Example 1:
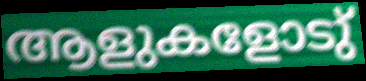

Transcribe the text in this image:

ആളുകളോടു്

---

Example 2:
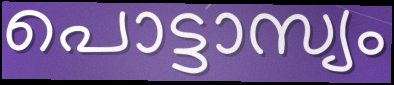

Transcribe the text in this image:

പൊട്ടാസ്യം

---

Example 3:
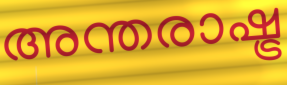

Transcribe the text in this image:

അന്തരാഷ്ട്ര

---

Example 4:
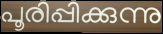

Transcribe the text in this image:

പൂരിപ്പിക്കുന്നു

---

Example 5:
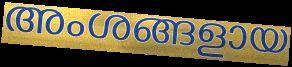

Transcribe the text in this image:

അംശങ്ങളായ